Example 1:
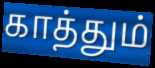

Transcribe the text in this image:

காத்தும்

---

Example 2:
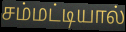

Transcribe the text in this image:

சம்மட்டியால்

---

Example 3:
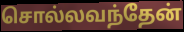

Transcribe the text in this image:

சொல்லவந்தேன்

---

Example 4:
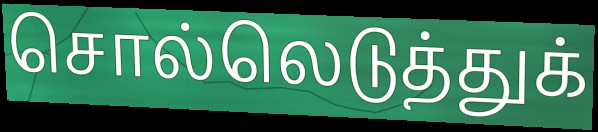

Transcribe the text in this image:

சொல்லெடுத்துக்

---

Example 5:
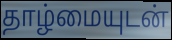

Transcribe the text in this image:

தாழ்மையுடன்